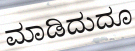
ಮಾಡಿದುದೂ